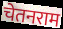
चेतनराम